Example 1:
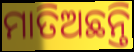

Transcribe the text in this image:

ମାତିଅଛନ୍ତି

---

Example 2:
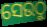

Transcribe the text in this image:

ସେଉଠୁ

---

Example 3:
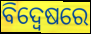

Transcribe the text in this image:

ବିଦ୍ୱେଷରେ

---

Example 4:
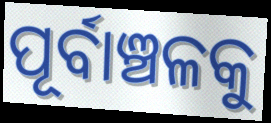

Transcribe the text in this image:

ପୂର୍ବାଞ୍ଚଳକୁ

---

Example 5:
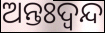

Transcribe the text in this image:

ଅନ୍ତଃଦ୍ବନ୍ଦ